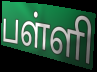
பள்ளி